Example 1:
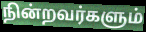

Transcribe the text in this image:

நின்றவர்களும்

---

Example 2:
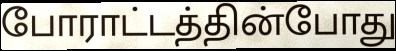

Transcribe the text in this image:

போராட்டத்தின்போது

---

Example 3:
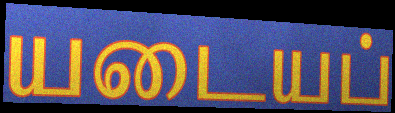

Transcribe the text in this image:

யடையப்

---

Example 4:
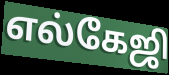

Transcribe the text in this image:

எல்கேஜி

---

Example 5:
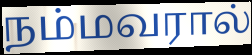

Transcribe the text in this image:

நம்மவரால்